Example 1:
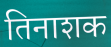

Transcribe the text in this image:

तिनाशक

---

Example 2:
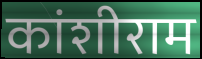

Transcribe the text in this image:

कांशीराम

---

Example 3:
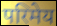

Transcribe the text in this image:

परिमेय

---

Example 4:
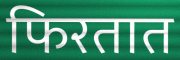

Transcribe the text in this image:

फिरतात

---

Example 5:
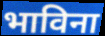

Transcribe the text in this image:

भाविना